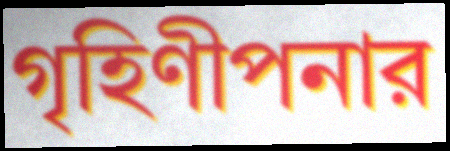
গৃহিণীপনার